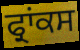
ਫ੍ਰਾਂਕਸ